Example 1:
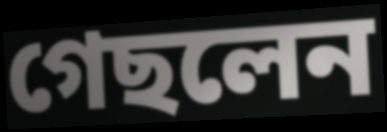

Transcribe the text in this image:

গেছলেন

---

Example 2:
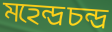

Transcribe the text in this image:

মহেন্দ্রচন্দ্র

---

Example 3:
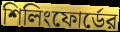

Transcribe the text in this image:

শিলিংফোর্ডের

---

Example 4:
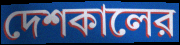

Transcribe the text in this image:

দেশকালের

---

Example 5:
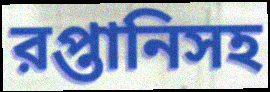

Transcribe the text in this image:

রপ্তানিসহ